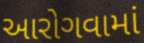
આરોગવામાં